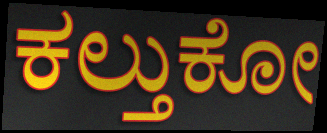
ಕಲ್ತುಕೋ